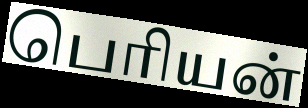
பெரியன்